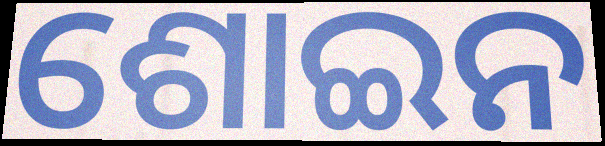
ଶୋଇନ